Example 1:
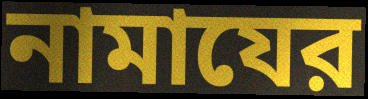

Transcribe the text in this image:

নামাযের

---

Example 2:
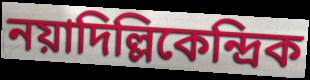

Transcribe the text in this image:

নয়াদিল্লিকেন্দ্রিক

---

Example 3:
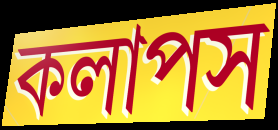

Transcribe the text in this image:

কলাপস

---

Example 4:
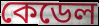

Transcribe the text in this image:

কেডেল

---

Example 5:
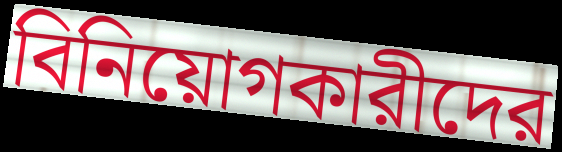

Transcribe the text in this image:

বিনিয়োগকারীদের